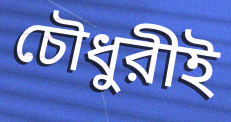
চৌধুরীই